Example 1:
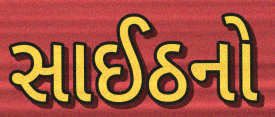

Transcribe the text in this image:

સાઈઠનો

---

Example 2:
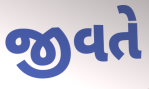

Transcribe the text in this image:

જીવતે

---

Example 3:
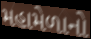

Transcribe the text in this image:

મહામેળાનો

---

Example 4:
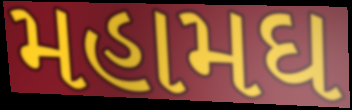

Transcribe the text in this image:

મહામઘ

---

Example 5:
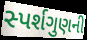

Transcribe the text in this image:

સ્પર્શગુણની